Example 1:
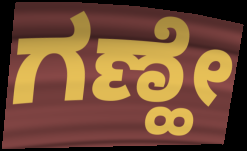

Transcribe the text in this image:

ಗಣ್ಹೇ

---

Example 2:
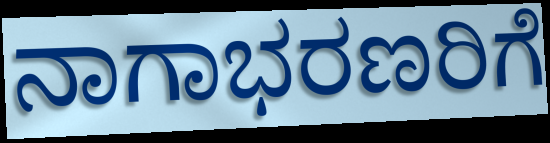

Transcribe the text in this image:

ನಾಗಾಭರಣರಿಗೆ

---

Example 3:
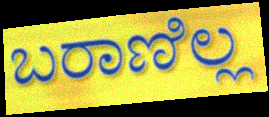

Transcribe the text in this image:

ಬರಾಣಿಲ್ಲ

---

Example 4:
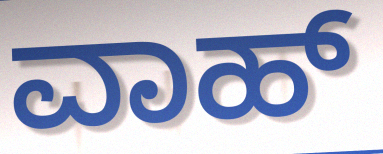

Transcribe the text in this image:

ವಾಹ್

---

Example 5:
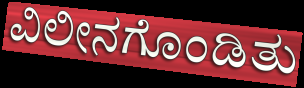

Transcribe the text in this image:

ವಿಲೀನಗೊಂಡಿತು